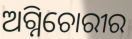
ଅଗ୍ନିଚୋରୀର